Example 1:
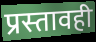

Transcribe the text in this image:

प्रस्तावही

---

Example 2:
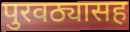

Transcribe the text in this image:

पुरवठ्यासह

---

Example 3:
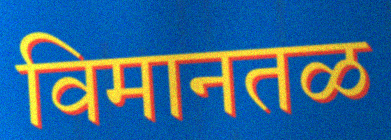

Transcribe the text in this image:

विमानतळ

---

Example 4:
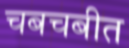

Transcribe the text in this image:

चबचबीत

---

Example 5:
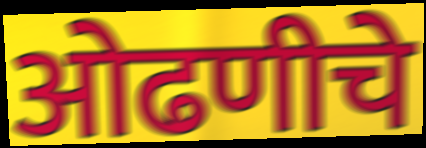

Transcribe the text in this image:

ओढणीचे